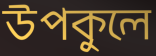
উপকুলে